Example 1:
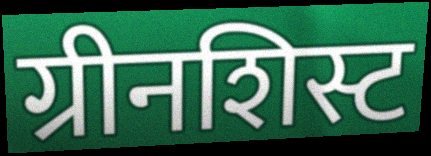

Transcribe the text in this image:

ग्रीनशिस्ट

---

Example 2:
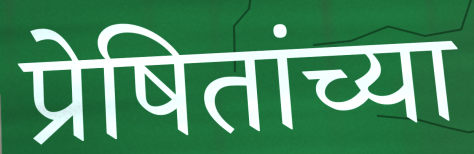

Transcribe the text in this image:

प्रेषितांच्या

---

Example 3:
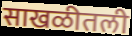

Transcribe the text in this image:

साखळीतली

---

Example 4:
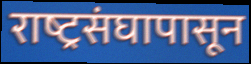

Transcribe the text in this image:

राष्ट्रसंघापासून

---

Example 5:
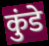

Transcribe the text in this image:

कुंडे